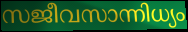
സജീവസാന്നിധ്യം